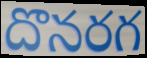
దొనరగ